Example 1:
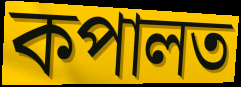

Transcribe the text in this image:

কপালত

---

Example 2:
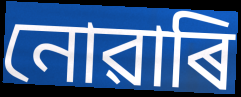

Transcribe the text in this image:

নোৱাৰি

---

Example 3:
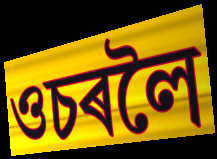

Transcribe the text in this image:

ওচৰলৈ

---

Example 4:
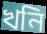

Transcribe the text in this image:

খনি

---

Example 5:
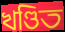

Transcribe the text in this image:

খণ্ডিত